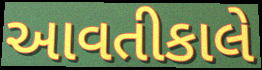
આવતીકાલે